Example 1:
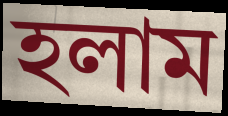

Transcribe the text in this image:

হলাম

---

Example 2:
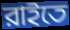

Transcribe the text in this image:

রাইতে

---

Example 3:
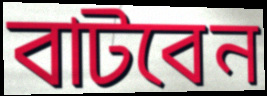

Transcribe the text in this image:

বাটবেন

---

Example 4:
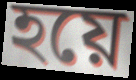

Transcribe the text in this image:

হয়ে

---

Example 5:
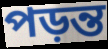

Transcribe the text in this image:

পড়ন্ত